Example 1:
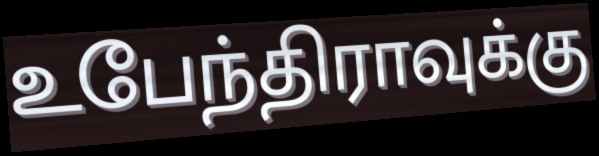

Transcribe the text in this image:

உபேந்திராவுக்கு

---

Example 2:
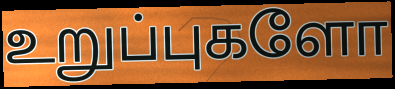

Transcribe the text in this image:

உறுப்புகளோ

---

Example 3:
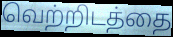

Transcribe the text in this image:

வெற்றிடத்தை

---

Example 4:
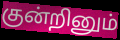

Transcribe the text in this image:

குன்றினும்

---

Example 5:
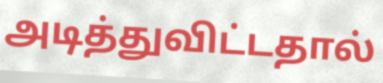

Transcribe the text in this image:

அடித்துவிட்டதால்